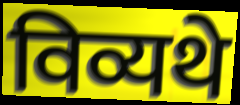
विव्यथे